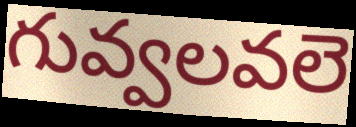
గువ్వలవలె